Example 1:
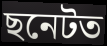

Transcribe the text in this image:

ছনেটত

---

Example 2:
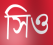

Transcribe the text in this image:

সিও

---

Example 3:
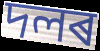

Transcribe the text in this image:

দলৰ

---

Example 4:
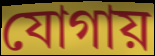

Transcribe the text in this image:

যোগায়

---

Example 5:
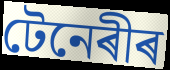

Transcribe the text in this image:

টেনেৰীৰ